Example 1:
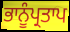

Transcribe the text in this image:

ਭਾਨੂੰਪ੍ਰਤਾਪ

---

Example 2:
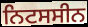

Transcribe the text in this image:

ਨਿਟਸਸੀਨ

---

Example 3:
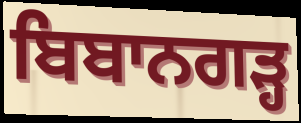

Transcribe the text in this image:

ਬਿਬਾਨਗੜ੍ਹ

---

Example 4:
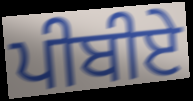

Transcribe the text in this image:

ਪੀਬੀਏ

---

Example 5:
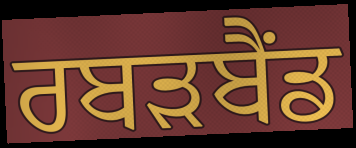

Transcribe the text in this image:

ਰਬੜਬੈਂਡ